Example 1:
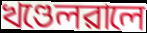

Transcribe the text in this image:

খণ্ডেলৱালে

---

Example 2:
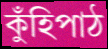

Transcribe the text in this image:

কুঁহিপাঠ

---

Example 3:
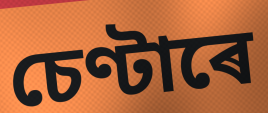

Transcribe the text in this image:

চেণ্টাৰে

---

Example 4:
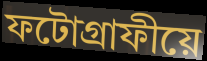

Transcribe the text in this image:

ফটোগ্ৰাফীয়ে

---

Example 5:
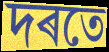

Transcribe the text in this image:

দৰতে